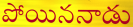
పోయిననాడు